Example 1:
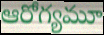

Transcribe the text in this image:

ఆరోగ్యమూ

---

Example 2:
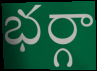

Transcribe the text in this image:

భర్గా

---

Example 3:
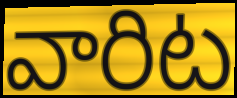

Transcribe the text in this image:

వారిట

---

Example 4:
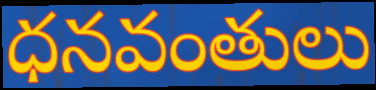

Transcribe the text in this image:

ధనవంతులు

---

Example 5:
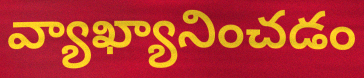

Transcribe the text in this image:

వ్యాఖ్యానించడం